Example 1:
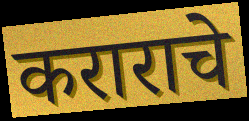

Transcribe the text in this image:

कराराचे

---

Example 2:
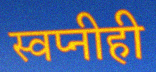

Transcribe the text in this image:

स्वप्नीही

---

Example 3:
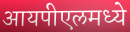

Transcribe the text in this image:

आयपीएलमध्ये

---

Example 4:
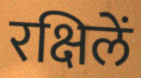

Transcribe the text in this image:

रक्षिलें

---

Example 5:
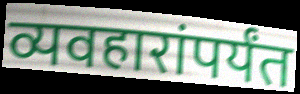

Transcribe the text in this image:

व्यवहारांपर्यंत